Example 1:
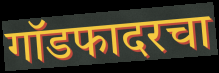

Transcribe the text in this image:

गॉडफादरचा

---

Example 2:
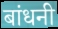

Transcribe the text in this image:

बांधनी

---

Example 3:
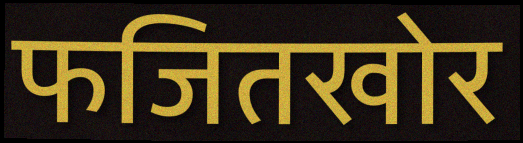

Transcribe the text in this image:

फजितखोर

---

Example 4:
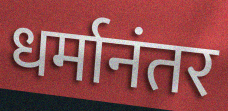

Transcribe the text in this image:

धर्मानंतर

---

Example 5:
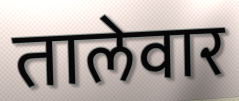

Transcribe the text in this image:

तालेवार